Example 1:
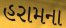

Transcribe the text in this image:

હરામના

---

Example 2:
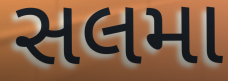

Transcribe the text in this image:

સલમા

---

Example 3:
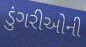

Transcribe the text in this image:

ડુંગરીઓની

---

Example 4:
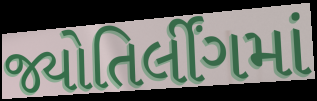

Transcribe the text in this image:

જ્યોતિર્લીંગમાં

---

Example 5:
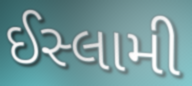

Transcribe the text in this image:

ઈસ્લામી